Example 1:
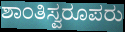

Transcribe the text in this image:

ಶಾಂತಿಸ್ವರೂಪರು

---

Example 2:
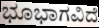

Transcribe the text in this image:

ಭೂಭಾಗವಿದೆ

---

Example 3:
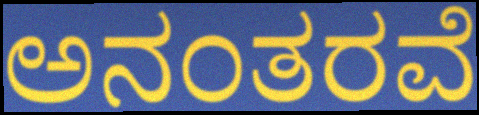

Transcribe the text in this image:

ಅನಂತರವೆ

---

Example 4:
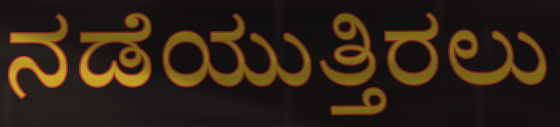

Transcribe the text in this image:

ನಡೆಯುತ್ತಿರಲು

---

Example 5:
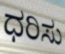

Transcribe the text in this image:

ಧರಿಸು